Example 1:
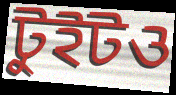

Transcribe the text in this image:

টুইটও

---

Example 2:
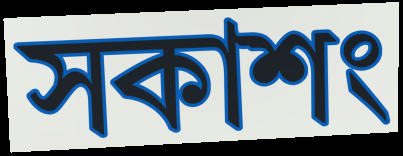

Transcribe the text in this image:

সকাশং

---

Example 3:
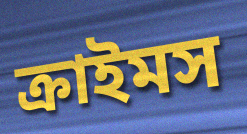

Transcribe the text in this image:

ক্রাইমস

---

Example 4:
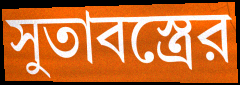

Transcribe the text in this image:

সুতাবস্ত্রের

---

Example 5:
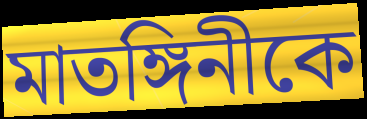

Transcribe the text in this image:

মাতঙ্গিনীকে